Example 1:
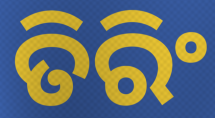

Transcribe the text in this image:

ତିରିଂ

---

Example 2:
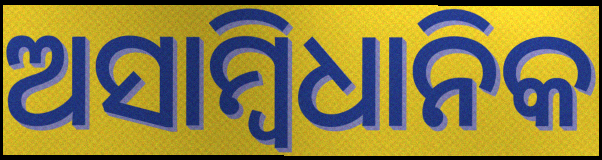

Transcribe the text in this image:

ଅସାମ୍ୱିଧାନିକ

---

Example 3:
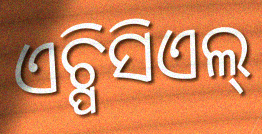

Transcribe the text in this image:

ଏଚ୍ପିସିଏଲ୍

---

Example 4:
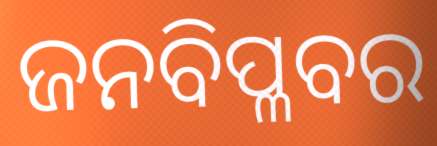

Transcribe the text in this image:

ଜନବିପ୍ଳବର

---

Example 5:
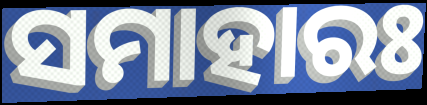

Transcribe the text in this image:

ସମାହାରଃ